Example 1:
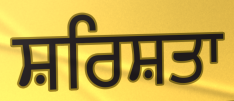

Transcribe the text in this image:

ਸ਼ਰਿਸ਼ਤਾ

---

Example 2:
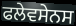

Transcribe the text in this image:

ਫਲੇਵਸੇਨਸ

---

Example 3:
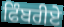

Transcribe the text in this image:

ਫਿੰਬਰੀਏ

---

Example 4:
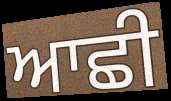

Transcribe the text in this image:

ਆਛੀ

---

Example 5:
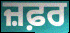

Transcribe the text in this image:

ਜ਼ਫ਼ਰ